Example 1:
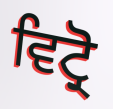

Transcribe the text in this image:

ਵਿਟ੍ਰੋ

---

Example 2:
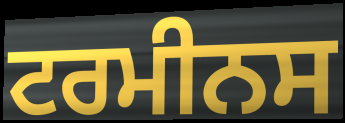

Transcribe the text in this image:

ਟਰਮੀਨਸ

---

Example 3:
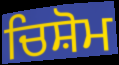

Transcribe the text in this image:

ਚਿਸ਼ੋਮ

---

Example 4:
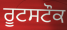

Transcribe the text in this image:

ਰੂਟਸਟੌਕ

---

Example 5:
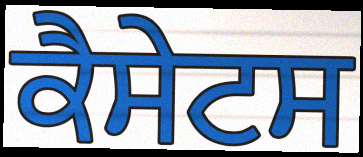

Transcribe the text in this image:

ਕੈਸੇਟਸ